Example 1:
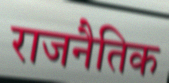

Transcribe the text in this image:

राजनैतिक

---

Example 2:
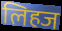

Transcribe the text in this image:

लिहज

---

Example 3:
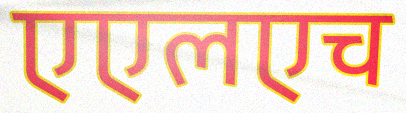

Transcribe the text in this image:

एएलएच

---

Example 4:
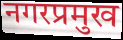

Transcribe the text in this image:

नगरप्रमुख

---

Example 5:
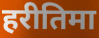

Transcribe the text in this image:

हरीतिमा